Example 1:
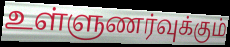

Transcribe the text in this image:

உள்ளுணர்வுக்கும்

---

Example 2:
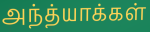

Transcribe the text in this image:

அந்த்யாக்கள்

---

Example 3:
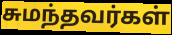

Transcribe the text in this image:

சுமந்தவர்கள்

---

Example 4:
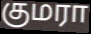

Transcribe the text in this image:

குமரா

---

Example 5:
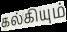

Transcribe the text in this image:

கல்கியும்